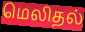
மெலிதல்